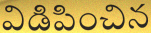
విడిపించిన